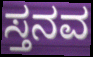
ಸ್ತನವ